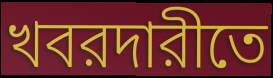
খবরদারীতে